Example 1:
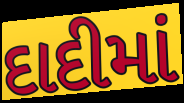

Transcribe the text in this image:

દાદીમાં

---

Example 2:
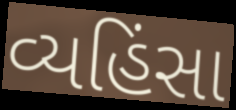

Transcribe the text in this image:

વ્યહિંસા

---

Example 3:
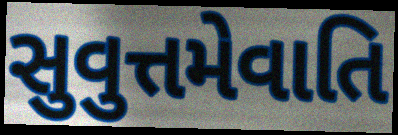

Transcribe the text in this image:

સુવુત્તમેવાતિ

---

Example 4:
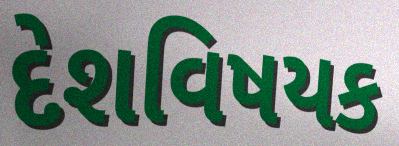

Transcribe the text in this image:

દેશવિષયક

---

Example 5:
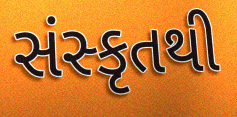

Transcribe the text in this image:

સંસ્કૃતથી